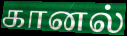
கானல்